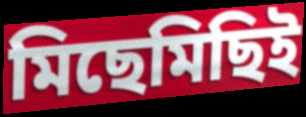
মিছেমিছিই